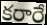
కరారే